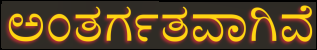
ಅಂತರ್ಗತವಾಗಿವೆ